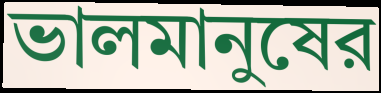
ভালমানুষের